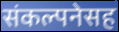
संकल्पनेसह